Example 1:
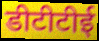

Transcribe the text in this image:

डीटीटीई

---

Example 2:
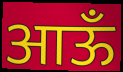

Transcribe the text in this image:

आऊँ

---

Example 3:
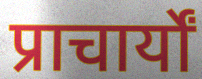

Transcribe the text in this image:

प्राचार्यों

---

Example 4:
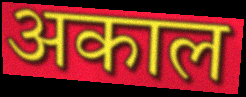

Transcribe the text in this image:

अकाल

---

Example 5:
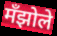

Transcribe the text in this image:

मँझोले